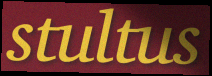
stultus